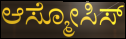
ಆಸ್ಮೋಸಿಸ್